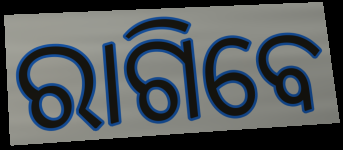
ରାଗିବେ